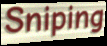
Sniping